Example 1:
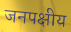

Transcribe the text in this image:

जनपक्षीय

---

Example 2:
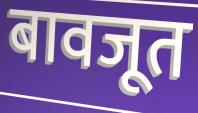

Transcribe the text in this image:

बावजूत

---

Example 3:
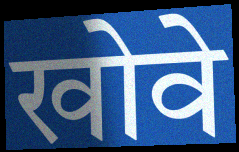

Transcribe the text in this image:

खोवे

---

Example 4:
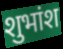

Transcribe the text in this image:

शुभांश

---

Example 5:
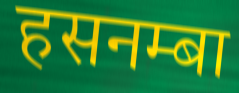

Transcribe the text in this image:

हसनम्बा